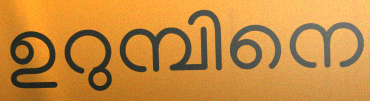
ഉറുമ്പിനെ